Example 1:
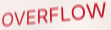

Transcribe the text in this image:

OVERFLOW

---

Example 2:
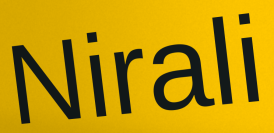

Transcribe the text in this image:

Nirali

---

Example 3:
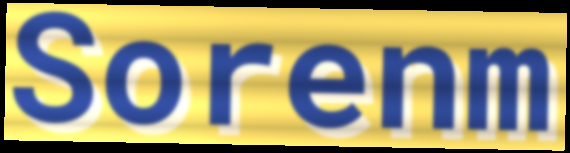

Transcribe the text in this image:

Sorenm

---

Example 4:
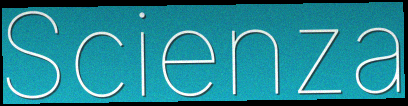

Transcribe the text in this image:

Scienza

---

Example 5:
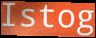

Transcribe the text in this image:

Istog